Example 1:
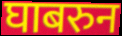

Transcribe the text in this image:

घाबरुन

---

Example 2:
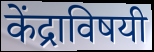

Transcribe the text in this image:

केंद्राविषयी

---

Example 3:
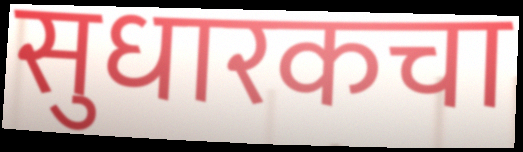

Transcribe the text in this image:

सुधारकचा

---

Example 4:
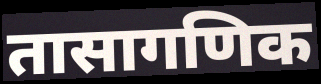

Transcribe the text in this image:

तासागणिक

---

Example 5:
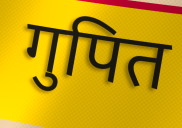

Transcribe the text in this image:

गुपित